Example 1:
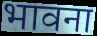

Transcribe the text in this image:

भावना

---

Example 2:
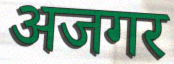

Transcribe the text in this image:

अजगर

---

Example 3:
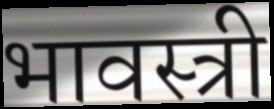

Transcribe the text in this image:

भावस्त्री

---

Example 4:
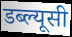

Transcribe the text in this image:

डब्ल्यूसी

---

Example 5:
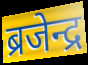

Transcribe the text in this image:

ब्रजेन्द्र